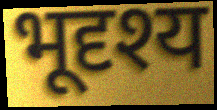
भूदृश्य